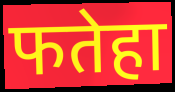
फतेहा